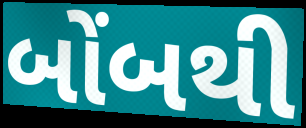
બોંબથી